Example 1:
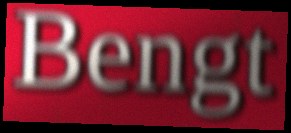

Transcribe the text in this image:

Bengt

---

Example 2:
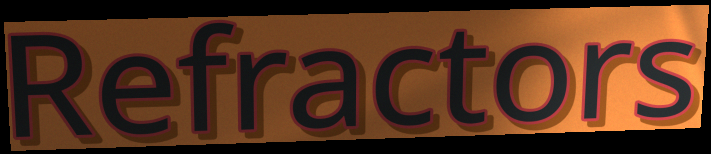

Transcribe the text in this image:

Refractors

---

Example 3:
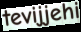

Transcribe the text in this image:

tevijjehi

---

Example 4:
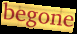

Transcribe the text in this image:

begone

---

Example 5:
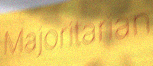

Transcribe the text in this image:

Majoritarian